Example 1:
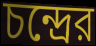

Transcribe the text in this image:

চন্দ্রের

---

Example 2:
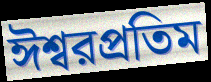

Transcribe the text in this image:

ঈশ্বরপ্রতিম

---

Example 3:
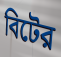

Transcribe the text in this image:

বিটের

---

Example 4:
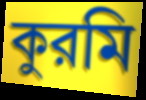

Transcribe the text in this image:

কুরমি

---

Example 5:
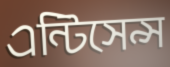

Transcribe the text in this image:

এন্টিসেন্স